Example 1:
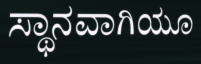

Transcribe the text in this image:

ಸ್ಥಾನವಾಗಿಯೂ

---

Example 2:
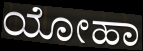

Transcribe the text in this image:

ಯೋಹಾ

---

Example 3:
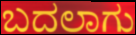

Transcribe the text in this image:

ಬದಲಾಗು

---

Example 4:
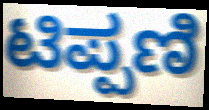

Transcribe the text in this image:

ಟಿಪ್ಪಣಿ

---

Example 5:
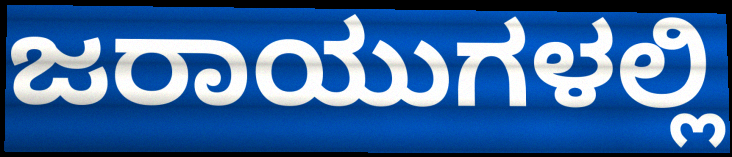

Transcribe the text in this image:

ಜರಾಯುಗಳಲ್ಲಿ